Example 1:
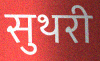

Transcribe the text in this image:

सुथरी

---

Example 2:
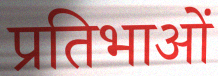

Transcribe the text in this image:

प्रतिभाओं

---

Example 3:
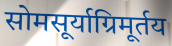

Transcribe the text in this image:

सोमसूर्याग्रिमूर्तय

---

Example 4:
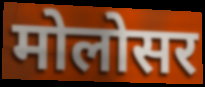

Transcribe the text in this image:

मोलोसर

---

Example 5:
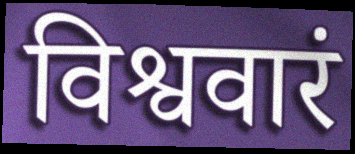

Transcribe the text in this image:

विश्ववारं